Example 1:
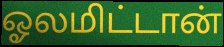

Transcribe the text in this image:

ஓலமிட்டான்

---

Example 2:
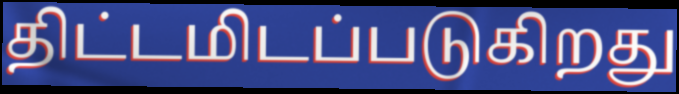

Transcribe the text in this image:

திட்டமிடப்படுகிறது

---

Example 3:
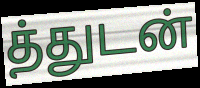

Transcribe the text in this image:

த்துடன்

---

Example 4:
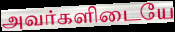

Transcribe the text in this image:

அவர்களிடையே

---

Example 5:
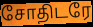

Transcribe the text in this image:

சோதிடரே